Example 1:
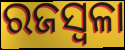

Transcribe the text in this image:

ରଜସ୍ବଳା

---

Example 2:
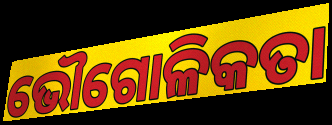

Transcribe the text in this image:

ଭୌଗୋଳିକତା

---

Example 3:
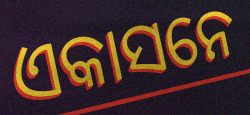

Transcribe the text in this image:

ଏକାସନେ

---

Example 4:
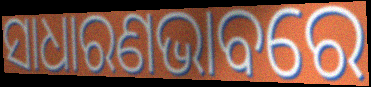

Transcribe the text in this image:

ସାଧାରଣଭାବରେ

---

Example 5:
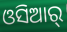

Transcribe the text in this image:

ଓସିଆର୍